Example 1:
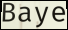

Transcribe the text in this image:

Baye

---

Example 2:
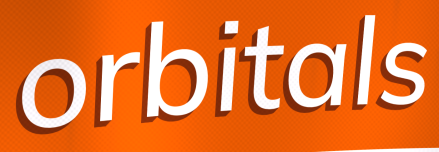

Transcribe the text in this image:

orbitals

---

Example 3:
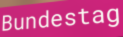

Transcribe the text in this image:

Bundestag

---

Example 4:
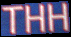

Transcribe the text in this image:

THH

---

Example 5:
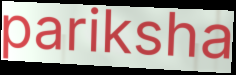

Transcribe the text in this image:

pariksha